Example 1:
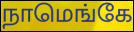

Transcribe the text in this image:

நாமெங்கே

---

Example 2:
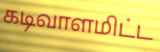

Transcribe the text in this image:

கடிவாளமிட்ட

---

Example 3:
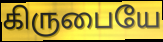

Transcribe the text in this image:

கிருபையே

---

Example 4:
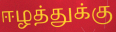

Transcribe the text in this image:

ஈழத்துக்கு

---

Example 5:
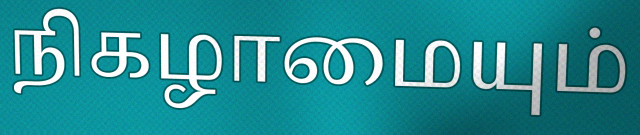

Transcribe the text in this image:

நிகழாமையும்